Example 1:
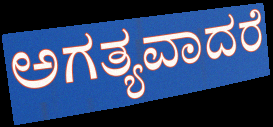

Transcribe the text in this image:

ಅಗತ್ಯವಾದರೆ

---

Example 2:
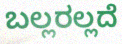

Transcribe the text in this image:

ಬಲ್ಲರಲ್ಲದೆ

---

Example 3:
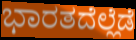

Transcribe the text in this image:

ಭಾರತದೆಲ್ಲೆಡೆ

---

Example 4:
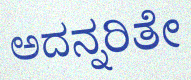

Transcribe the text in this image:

ಅದನ್ನರಿತೇ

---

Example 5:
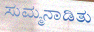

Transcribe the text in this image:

ಸುಮ್ಮನಾಡಿತು